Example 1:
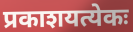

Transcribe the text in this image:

प्रकाशयत्येकः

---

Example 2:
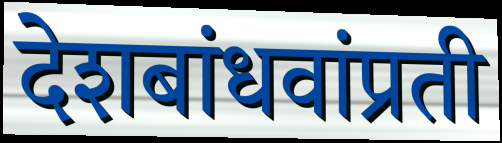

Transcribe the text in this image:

देशबांधवांप्रती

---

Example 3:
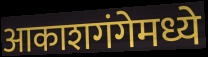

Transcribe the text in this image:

आकाशगंगेमध्ये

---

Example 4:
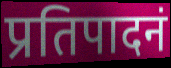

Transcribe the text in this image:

प्रतिपादनं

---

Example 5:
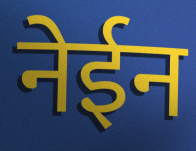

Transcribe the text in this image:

नेईन